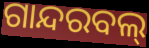
ଗାନ୍ଦରବଲ୍